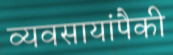
व्यवसायांपैकी